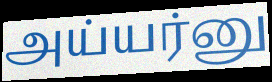
அய்யர்னு